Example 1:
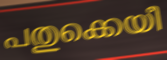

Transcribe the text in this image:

പതുക്കെയീ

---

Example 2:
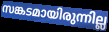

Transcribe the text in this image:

സങ്കടമായിരുന്നില്ല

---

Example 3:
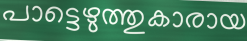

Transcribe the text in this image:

പാട്ടെഴുത്തുകാരായ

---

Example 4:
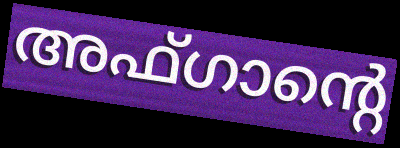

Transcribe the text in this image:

അഫ്ഗാന്റെ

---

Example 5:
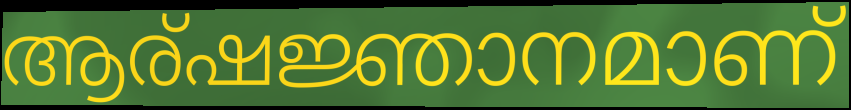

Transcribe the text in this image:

ആര്ഷജ്ഞാനമാണ്